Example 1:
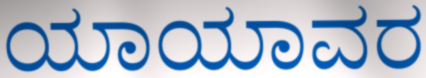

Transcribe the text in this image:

ಯಾಯಾವರ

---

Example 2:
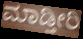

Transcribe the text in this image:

ಮಾಡ್ತೀರಿ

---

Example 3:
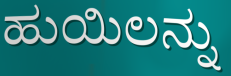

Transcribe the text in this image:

ಹುಯಿಲನ್ನು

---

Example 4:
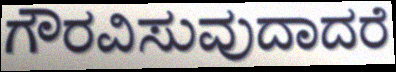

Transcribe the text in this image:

ಗೌರವಿಸುವುದಾದರೆ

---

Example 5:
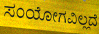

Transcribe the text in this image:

ಸಂಯೋಗವಿಲ್ಲದೆ